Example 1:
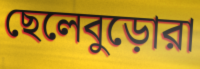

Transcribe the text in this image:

ছেলেবুড়োরা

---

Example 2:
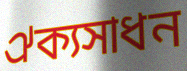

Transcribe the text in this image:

ঐক্যসাধন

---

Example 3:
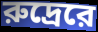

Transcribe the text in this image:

রুদ্রেরে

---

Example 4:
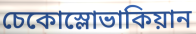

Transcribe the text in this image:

চেকোস্লোভাকিয়ান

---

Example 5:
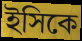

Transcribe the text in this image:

ইসিকে